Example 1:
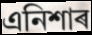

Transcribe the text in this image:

এনিশাৰ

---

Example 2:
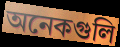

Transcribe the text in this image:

অনেকগুলি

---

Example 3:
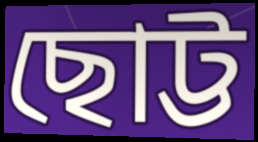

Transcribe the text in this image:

ছোট্ট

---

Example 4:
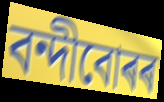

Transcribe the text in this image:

বন্দীবোৰৰ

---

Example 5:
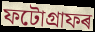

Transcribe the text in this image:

ফটোগ্ৰাফৰ